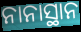
ନାନାସ୍ଥାନ